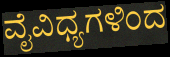
ವೈವಿಧ್ಯಗಳಿಂದ